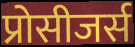
प्रोसीजर्स